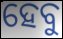
ହେବୁ